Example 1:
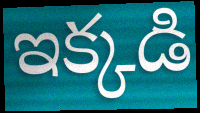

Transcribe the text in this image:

ఇక్కడి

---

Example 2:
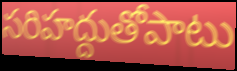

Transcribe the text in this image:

సరిహద్దుతోపాటు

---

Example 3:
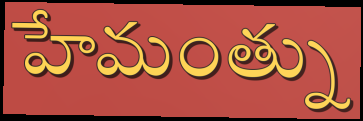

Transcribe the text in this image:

హేమంత్ను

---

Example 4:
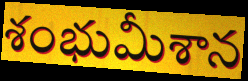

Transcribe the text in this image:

శంభుమీశాన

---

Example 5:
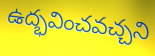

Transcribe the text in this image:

ఉద్భవించవచ్చని